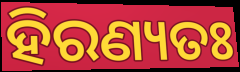
ହିରଣ୍ୟତଃ